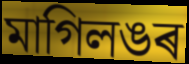
মাগিলঙৰ